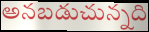
అనబడుచున్నది